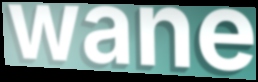
wane